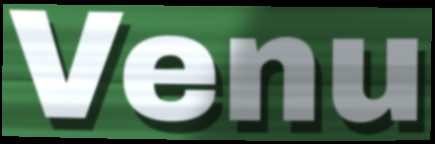
Venu